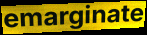
emarginate